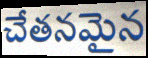
చేతనమైన